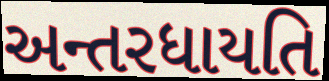
અન્તરધાયતિ